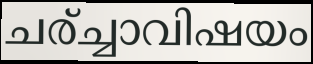
ചര്ച്ചാവിഷയം